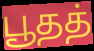
பூதத்